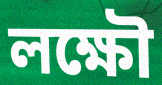
লক্ষৌ